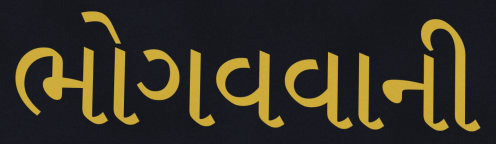
ભોગવવાની